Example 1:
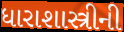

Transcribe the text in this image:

ધારાશાસ્ત્રીની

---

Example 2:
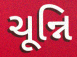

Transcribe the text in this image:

ચૂન્નિ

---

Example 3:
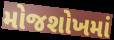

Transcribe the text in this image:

મોજશોખમાં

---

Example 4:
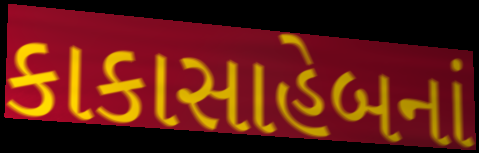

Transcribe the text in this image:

કાકાસાહેબનાં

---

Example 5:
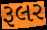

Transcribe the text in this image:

રૂલર